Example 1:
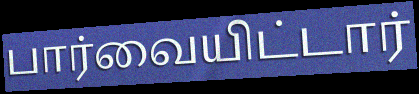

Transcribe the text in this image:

பார்வையிட்டார்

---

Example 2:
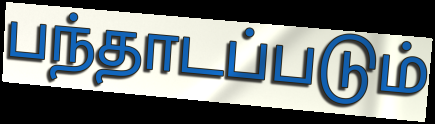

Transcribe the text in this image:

பந்தாடப்படும்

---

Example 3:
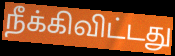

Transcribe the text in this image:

நீக்கிவிட்டது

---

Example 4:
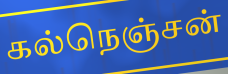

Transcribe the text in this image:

கல்நெஞ்சன்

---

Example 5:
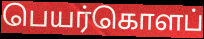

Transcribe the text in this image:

பெயர்கொளப்